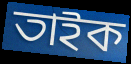
তাইক